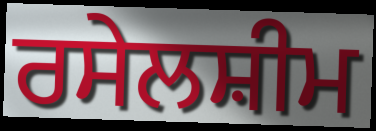
ਰਸੇਲਸ਼ੀਮ